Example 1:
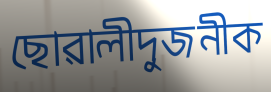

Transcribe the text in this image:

ছোৱালীদুজনীক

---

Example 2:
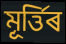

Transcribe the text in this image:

মূৰ্ত্তিৰ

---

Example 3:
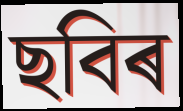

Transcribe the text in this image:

ছবিৰ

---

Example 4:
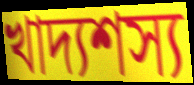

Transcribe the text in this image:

খাদ্যশস্য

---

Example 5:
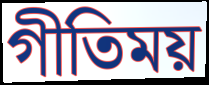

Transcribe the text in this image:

গীতিময়